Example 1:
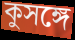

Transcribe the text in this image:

কুসঙ্গে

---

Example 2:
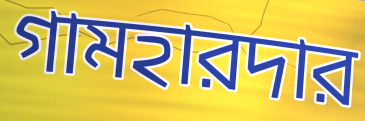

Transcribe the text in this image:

গামহারদার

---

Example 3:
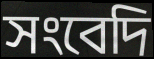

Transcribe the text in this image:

সংবেদি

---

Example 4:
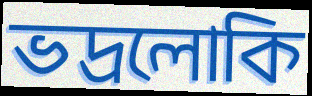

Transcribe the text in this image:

ভদ্রলোকি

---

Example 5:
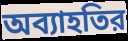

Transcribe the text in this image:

অব্যাহতির